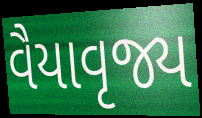
વૈયાવૃજ્ય